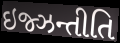
ઇજ્ઝન્તીતિ